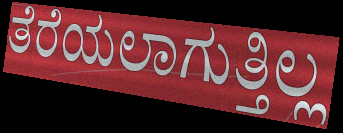
ತೆರೆಯಲಾಗುತ್ತಿಲ್ಲ